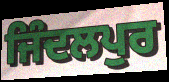
ਜਿੰਦਲਪੁਰ